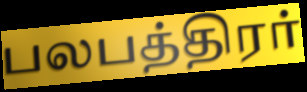
பலபத்திரர்